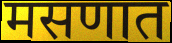
मसणात